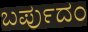
ಬರ್ಪುದಂ